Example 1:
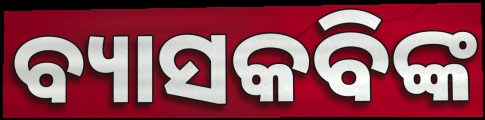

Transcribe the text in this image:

ବ୍ୟାସକବିଙ୍କ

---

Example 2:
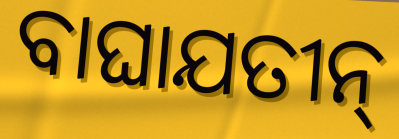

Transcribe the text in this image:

ବାଘାଯତୀନ୍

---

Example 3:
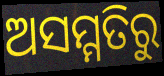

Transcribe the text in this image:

ଅସମ୍ମତିରୁ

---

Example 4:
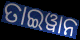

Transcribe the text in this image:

ତାଇୱାନ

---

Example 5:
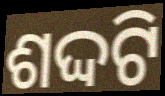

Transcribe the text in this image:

ଶଦ୍ଦଟି